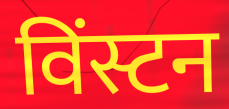
विंस्टन